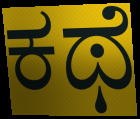
ಕಥೆ